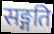
सङ्गति